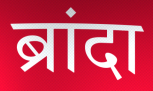
ब्रांदा